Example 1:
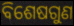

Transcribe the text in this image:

ବିଶେଷଗୁଣ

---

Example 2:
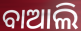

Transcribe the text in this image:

ବାଆଲି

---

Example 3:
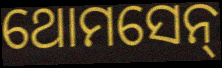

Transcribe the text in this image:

ଥୋମସେନ୍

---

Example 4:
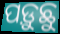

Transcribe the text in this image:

ପଡ଼ୁଛୁ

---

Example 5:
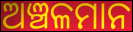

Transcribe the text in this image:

ଅଞ୍ଚଳମାନ